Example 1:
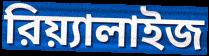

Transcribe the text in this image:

রিয়্যালাইজ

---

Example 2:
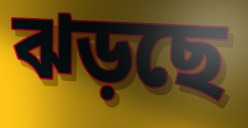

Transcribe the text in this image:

ঝড়ছে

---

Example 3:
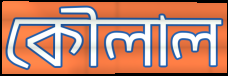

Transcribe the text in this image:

কৌলাল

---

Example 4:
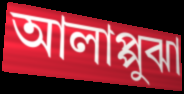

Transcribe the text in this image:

আলাপ্পুঝা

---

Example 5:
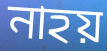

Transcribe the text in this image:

নাহয়